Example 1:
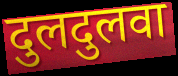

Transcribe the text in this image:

दुलदुलवा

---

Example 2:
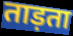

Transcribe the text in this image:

ताड़ता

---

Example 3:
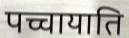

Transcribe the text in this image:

पच्चायाति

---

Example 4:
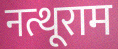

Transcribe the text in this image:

नत्थूराम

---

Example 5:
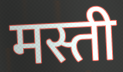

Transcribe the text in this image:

मस्ती